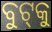
ବୁଟ୍‌କୁ